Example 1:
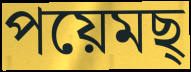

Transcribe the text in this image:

পয়েমছ্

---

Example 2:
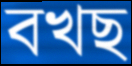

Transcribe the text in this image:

বখছ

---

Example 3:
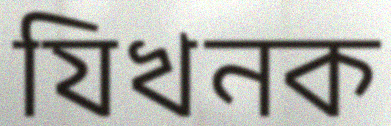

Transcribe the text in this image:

যিখনক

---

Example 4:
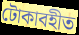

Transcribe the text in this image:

টোকাবহীত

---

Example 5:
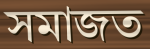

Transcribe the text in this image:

সমাজত